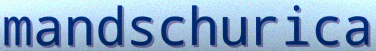
mandschurica